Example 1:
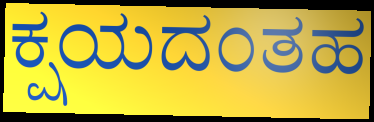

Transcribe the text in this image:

ಕ್ಷಯದಂತಹ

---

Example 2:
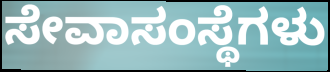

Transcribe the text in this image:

ಸೇವಾಸಂಸ್ಥೆಗಳು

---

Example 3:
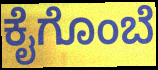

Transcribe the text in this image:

ಕೈಗೊಂಬೆ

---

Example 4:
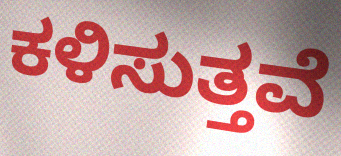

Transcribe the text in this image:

ಕಳಿಸುತ್ತವೆ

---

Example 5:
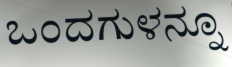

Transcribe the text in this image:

ಒಂದಗುಳನ್ನೂ